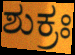
ಶುಕ್ರಃ